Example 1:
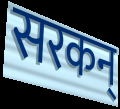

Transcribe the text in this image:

सरकन्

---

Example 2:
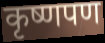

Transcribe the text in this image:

कृष्णपण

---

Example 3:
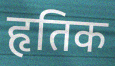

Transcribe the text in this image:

हृतिक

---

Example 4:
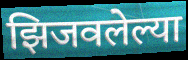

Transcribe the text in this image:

झिजवलेल्या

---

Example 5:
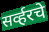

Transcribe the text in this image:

सर्व्हरचे